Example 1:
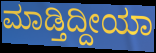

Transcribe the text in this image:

ಮಾಡ್ತಿದ್ದೀಯಾ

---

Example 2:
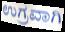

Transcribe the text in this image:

ಉಗ್ರವಾಗಿ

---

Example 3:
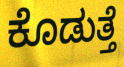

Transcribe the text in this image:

ಕೊಡುತ್ತೆ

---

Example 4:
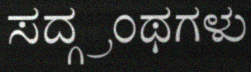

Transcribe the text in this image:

ಸದ್ಗ್ರಂಥಗಳು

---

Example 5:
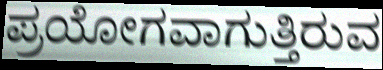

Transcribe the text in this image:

ಪ್ರಯೋಗವಾಗುತ್ತಿರುವ